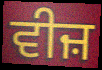
ਵੀਜ਼